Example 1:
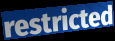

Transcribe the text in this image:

restricted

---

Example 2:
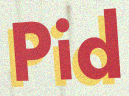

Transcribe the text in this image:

Pid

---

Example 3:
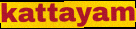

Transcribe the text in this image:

kattayam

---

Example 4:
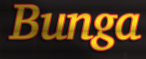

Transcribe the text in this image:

Bunga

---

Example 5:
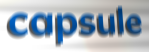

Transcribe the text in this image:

capsule